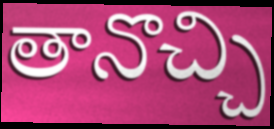
తానొచ్చి